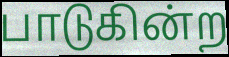
பாடுகின்ற